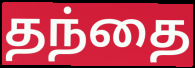
தந்தை